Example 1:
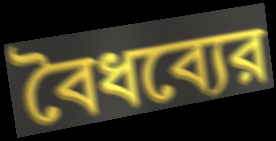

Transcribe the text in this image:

বৈধব্যের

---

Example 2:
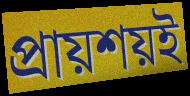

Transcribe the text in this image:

প্রায়শয়ই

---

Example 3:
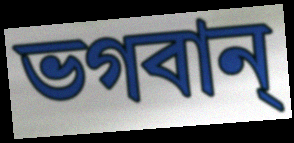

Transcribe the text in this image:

ভগবান্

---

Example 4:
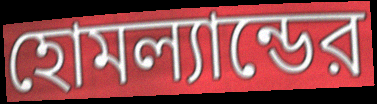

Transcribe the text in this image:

হোমল্যান্ডের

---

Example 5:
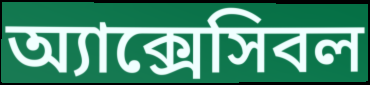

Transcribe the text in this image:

অ্যাক্সেসিবল